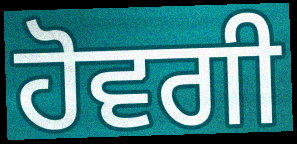
ਹੋਵਗੀ